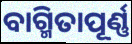
ବାଗ୍ମିତାପୂର୍ଣ୍ଣ